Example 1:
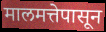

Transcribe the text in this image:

मालमत्तेपासून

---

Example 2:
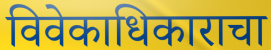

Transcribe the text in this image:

विवेकाधिकाराचा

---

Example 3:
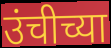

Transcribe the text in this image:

उंचीच्या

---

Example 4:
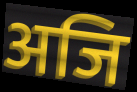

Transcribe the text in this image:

अजि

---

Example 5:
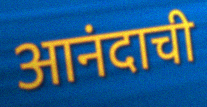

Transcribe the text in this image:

आनंदाची